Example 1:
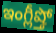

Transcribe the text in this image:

ఇంగ్లీష్తో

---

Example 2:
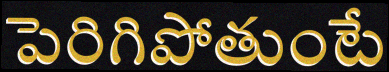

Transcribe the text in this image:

పెరిగిపోతుంటే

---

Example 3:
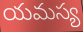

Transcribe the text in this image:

యమస్య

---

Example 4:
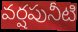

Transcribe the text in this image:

వర్షపునీటి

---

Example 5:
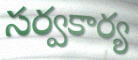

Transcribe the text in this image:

సర్వకార్య